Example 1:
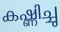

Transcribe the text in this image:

കഷ്ണിച്ചു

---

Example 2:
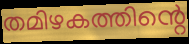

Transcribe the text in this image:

തമിഴകത്തിന്റെ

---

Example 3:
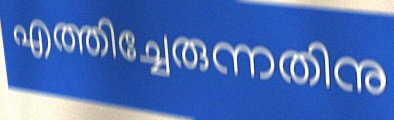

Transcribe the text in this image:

എത്തിച്ചേരുന്നതിനു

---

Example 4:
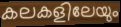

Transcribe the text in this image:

കലകളിലേയും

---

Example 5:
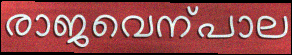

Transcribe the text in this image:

രാജവെന്പാല